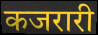
कजरारी